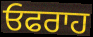
ਓਫਰਾਹ